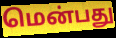
மென்பது